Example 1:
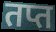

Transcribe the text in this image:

तप्त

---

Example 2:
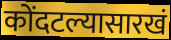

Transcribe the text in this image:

कोंदटल्यासारखं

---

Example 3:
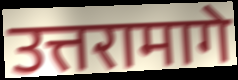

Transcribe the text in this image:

उत्तरामागे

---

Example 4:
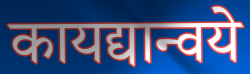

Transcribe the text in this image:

कायद्यान्वये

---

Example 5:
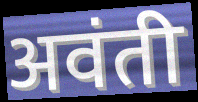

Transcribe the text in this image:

अवंती